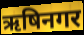
ऋषिनगर